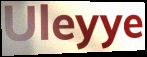
Uleyye